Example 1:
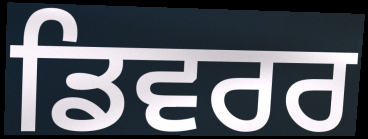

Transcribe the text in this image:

ਡਿਵਰਰ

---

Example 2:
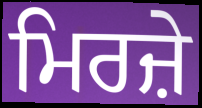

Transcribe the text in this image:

ਮਿਰਜ਼ੇ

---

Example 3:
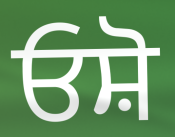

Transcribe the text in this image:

ਓਸ਼ੋ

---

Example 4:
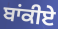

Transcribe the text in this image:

ਬਾਂਕੀਏ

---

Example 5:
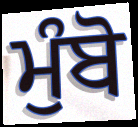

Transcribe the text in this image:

ਮੁੰਬੋ